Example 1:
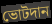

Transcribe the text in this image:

ভোটদান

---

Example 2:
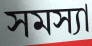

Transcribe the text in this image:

সমস্য়া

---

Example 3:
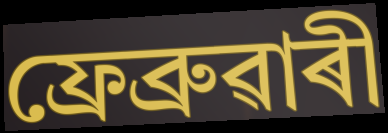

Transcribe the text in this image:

ফ্ৰেব্ৰুৱাৰী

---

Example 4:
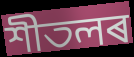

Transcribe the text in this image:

শীতলৰ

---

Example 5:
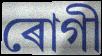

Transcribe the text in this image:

ৰোগী